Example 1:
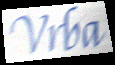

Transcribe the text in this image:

Vrba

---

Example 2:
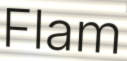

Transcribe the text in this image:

Flam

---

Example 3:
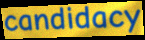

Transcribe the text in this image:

candidacy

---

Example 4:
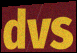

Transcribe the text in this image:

dvs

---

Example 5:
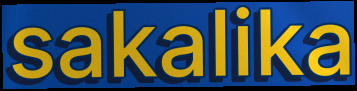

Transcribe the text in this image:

sakalika